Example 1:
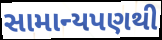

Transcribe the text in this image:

સામાન્યપણથી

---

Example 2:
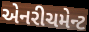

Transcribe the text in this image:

એનરીચમેન્ટ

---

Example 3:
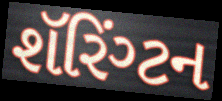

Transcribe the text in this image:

શૅરિંગ્ટન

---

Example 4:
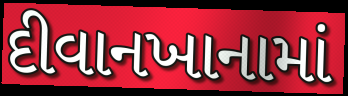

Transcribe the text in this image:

દીવાનખાનામાં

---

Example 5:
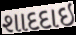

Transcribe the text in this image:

શાદદાઇ